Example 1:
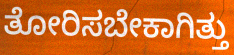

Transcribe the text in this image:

ತೋರಿಸಬೇಕಾಗಿತ್ತು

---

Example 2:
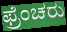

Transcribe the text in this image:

ಫ್ರೆಂಚರು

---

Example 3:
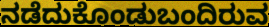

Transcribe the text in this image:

ನಡೆದುಕೊಂಡುಬಂದಿರುವ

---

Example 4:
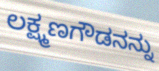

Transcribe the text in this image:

ಲಕ್ಷ್ಮಣಗೌಡನನ್ನು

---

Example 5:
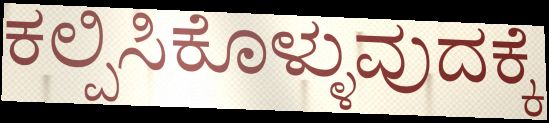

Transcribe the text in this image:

ಕಲ್ಪಿಸಿಕೊಳ್ಳುವುದಕ್ಕೆ